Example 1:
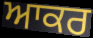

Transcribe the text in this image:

ਆਕਰ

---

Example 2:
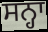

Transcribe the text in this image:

ਸਨ੍ਹਾ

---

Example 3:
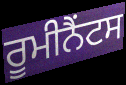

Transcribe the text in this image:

ਰੂਮੀਨੈਂਟਸ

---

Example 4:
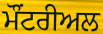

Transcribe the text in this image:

ਮੌਂਟਰੀਅਲ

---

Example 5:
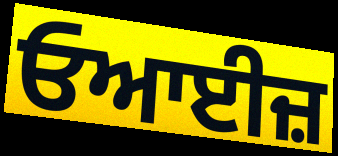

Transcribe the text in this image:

ਓਆਈਜ਼